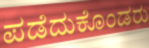
ಪಡೆದುಕೊಂಡರು